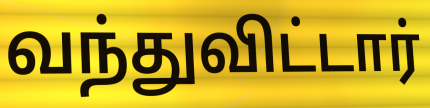
வந்துவிட்டார்